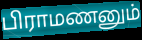
பிராமணனும்